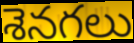
శెనగలు